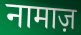
नामाज़